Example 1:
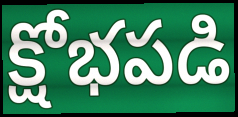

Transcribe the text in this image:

క్షోభపడి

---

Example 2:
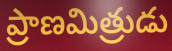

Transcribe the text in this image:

ప్రాణమిత్రుడు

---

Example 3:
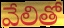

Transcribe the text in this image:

వేలితో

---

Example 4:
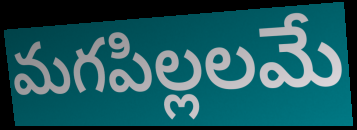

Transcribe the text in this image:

మగపిల్లలమే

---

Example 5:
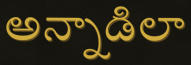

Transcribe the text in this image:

అన్నాడిలా